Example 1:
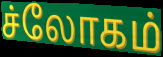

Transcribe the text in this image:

ச்லோகம்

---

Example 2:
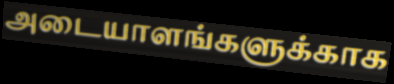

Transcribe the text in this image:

அடையாளங்களுக்காக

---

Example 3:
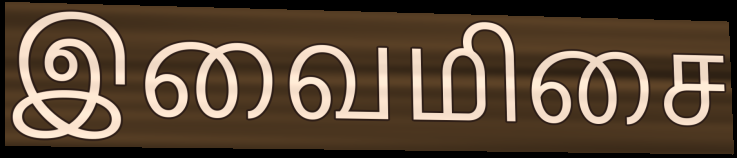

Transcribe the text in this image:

இவைமிசை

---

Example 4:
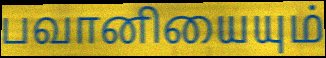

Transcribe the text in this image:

பவானியையும்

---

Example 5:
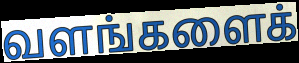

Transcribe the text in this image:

வளங்களைக்